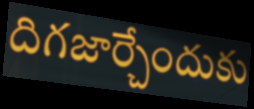
దిగజార్చేందుకు